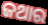
ଜଥାର